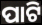
ପାଟି